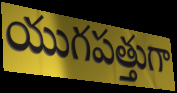
యుగపత్తుగా